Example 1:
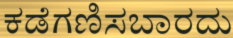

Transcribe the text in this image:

ಕಡೆಗಣಿಸಬಾರದು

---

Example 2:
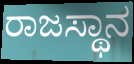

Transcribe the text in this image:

ರಾಜಸ್ಥಾನ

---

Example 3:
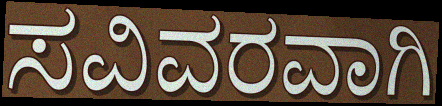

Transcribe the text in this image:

ಸವಿವರವಾಗಿ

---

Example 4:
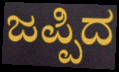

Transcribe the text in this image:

ಜಪ್ಪಿದ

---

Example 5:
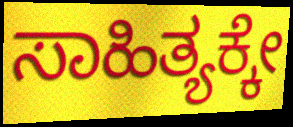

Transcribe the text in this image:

ಸಾಹಿತ್ಯಕ್ಕೇ